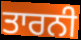
ਤਾਰਨੀ